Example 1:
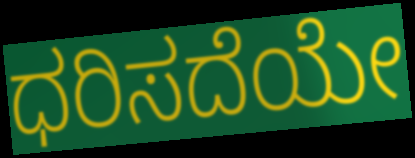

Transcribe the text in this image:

ಧರಿಸದೆಯೇ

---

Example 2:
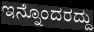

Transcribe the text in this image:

ಇನ್ನೊಂದರದ್ದು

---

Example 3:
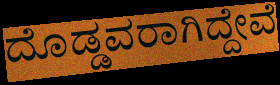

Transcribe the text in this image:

ದೊಡ್ಡವರಾಗಿದ್ದೇವೆ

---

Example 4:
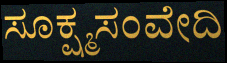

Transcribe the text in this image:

ಸೂಕ್ಷ್ಮಸಂವೇದಿ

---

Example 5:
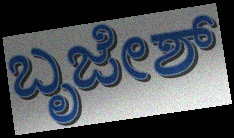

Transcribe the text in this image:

ಬೃಜೇಶ್